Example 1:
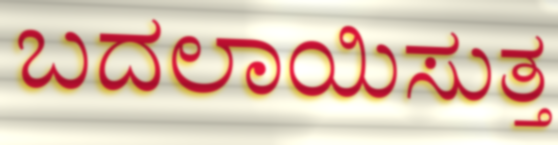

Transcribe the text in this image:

ಬದಲಾಯಿಸುತ್ತ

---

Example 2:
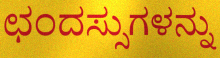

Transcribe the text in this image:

ಛಂದಸ್ಸುಗಳನ್ನು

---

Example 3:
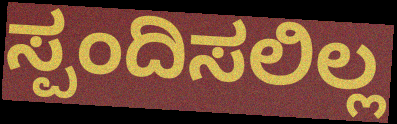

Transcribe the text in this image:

ಸ್ಪಂದಿಸಲಿಲ್ಲ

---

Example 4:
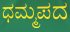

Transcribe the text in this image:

ಧಮ್ಮಪದ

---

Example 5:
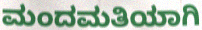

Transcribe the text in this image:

ಮಂದಮತಿಯಾಗಿ